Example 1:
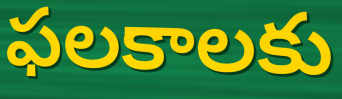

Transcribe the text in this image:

ఫలకాలకు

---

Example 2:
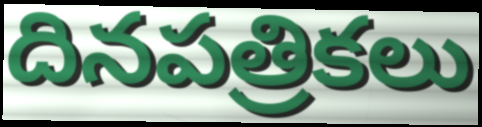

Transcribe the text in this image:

దినపత్రికలు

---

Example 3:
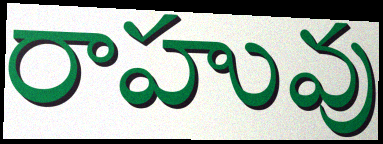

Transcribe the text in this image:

రాహువు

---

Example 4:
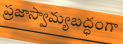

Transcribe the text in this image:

ప్రజాస్వామ్యబద్ధంగా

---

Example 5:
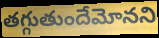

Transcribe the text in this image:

తగ్గుతుందేమోనని